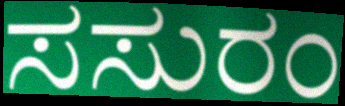
ಸಸುರಂ